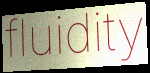
fluidity